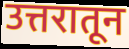
उत्तरातून